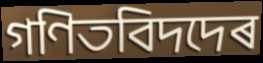
গণিতবিদদেৰ